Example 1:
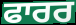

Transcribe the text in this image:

ਫਾਰਰ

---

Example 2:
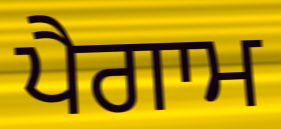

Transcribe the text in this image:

ਪੈਗਾਮ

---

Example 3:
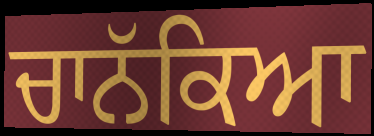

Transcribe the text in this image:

ਚਾਨੱਕਿਆ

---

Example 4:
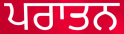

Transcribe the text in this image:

ਪਰਾਤਨ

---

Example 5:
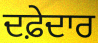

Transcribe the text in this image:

ਦਫ਼ੇਦਾਰ